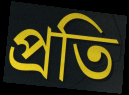
প্ৰতি